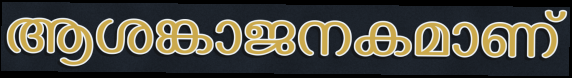
ആശങ്കാജനകമാണ്